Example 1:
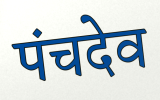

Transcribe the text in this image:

पंचदेव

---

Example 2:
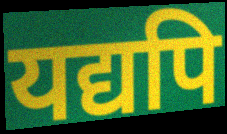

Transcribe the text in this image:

यद्यपि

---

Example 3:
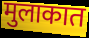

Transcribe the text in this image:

मुलाकात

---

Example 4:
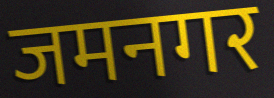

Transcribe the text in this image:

जमनगर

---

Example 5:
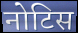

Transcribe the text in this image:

नोटिस